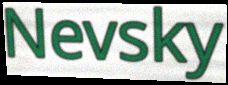
Nevsky